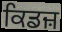
ਕਿਡਜ਼